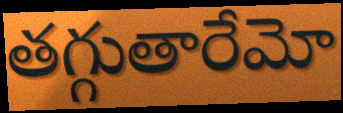
తగ్గుతారేమో